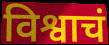
विश्वाचं